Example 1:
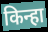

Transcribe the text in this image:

किन्हा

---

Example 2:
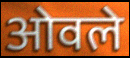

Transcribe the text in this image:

ओवले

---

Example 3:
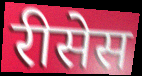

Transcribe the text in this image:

रीसेस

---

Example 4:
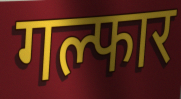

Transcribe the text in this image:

गल्फार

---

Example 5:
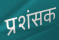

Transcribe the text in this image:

प्रशंसक